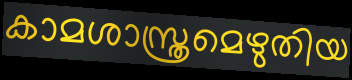
കാമശാസ്ത്രമെഴുതിയ